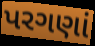
પરગણાં